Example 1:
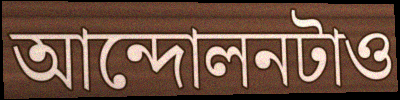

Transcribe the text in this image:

আন্দোলনটাও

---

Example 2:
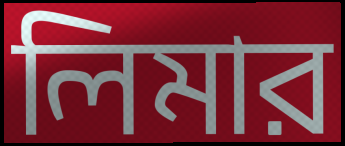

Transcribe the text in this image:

লিমার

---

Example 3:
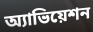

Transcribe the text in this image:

অ্যাভিয়েশন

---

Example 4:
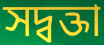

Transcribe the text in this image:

সদ্বক্তা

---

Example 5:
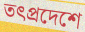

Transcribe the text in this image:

তৎপ্রদেশে